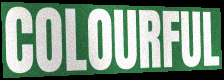
COLOURFUL